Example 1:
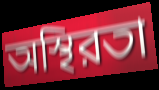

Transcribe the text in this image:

অস্থিরতা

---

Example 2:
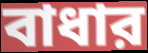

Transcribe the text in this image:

বাধার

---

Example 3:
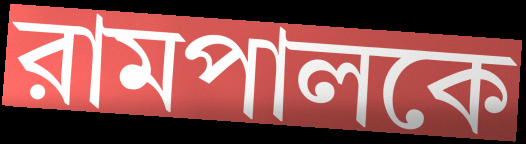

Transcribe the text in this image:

রামপালকে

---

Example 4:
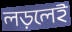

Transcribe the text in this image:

লড়লেই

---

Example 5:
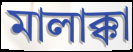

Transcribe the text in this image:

মালাক্কা